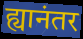
ह्यानंतर